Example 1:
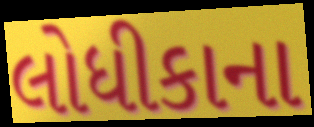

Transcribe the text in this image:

લોધીકાના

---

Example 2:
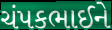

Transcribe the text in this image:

ચંપકભાઈને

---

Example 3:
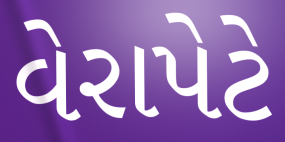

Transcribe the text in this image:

વેરાપેટે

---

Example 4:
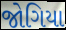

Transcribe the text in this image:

જોગિયા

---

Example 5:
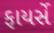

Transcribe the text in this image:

ફાયર્સે